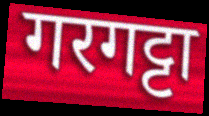
गरगट्टा